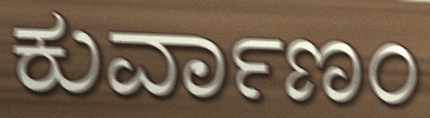
ಕುರ್ವಾಣಂ